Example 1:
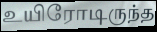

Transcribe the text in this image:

உயிரோடிருந்த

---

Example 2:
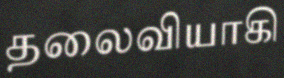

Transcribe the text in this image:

தலைவியாகி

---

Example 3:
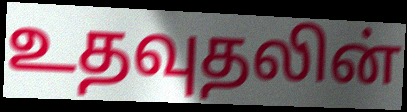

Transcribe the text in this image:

உதவுதலின்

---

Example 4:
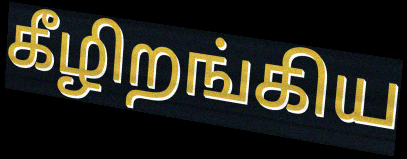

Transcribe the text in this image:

கீழிறங்கிய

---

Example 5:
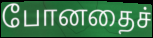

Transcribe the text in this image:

போனதைச்